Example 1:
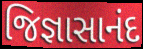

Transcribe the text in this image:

જિજ્ઞાસાનંદ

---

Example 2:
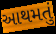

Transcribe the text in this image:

આથમતું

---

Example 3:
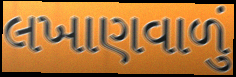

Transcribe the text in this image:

લખાણવાળું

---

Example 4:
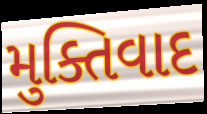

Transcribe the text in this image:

મુક્તિવાદ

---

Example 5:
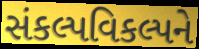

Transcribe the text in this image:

સંકલ્પવિકલ્પને